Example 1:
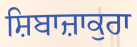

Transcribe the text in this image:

ਸ਼ਿਬਾਜ਼ਾਕੁਰਾ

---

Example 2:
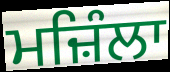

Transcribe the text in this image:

ਮਜ਼ਿੰਲਾ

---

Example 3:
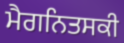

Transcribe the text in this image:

ਮੈਗਨਿਤਸਕੀ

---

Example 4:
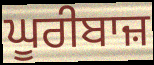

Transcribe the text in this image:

ਘੂਰੀਬਾਜ਼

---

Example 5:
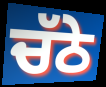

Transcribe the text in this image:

ਚੱਠੇ